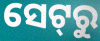
ସେଟ୍‌ରୁ